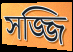
সজ্জি